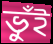
ভুঁই